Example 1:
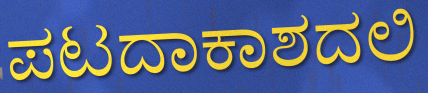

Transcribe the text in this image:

ಪಟದಾಕಾಶದಲಿ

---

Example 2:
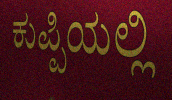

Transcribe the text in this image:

ಕುಪ್ಪಿಯಲ್ಲಿ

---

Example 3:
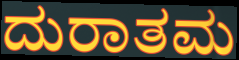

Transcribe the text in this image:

ದುರಾತಮ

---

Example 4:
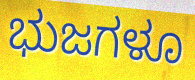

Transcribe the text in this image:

ಭುಜಗಳೂ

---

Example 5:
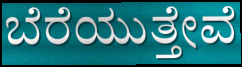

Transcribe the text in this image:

ಬೆರೆಯುತ್ತೇವೆ